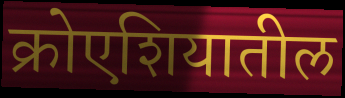
क्रोएशियातील